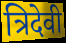
त्रिदेवी